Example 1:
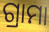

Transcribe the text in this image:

ଗ୍ରାମା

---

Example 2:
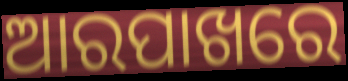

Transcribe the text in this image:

ଆରପାଖରେ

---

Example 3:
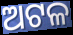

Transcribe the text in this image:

ଅଟଳ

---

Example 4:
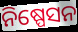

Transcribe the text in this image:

ନିଷ୍ପେସନ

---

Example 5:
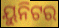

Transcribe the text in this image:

ୟୁନିଟର